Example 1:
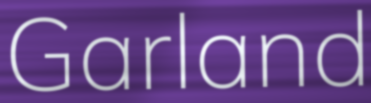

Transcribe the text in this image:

Garland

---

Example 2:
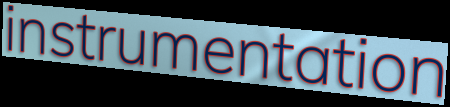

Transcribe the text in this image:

instrumentation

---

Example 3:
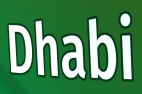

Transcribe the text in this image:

Dhabi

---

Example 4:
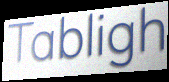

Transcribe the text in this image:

Tabligh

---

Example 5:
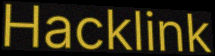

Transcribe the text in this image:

Hacklink